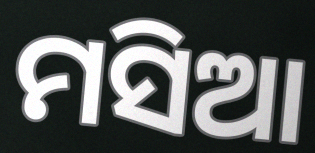
ମସିଆ